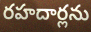
రహదార్లను